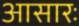
आसारः